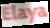
Elaya